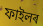
ফাইলৰ